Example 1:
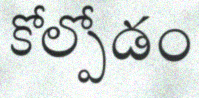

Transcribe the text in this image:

కోల్పోడం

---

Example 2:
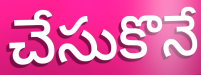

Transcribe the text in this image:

చేసుకొనే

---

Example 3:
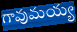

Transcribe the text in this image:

గావుమయ్య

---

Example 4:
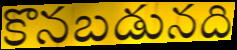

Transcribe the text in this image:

కొనబడునది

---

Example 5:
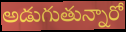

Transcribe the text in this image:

అడుగుతున్నారో